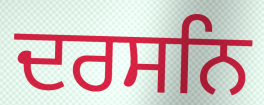
ਦਰਸਨਿ